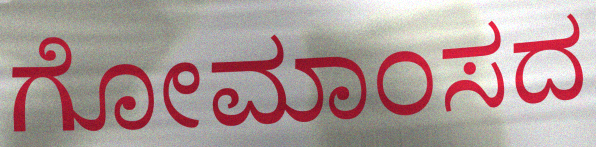
ಗೋಮಾಂಸದ